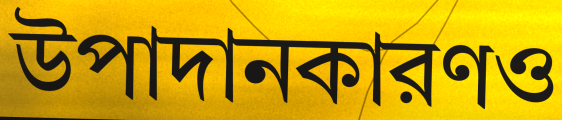
উপাদানকারণও